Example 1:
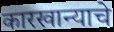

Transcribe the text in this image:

कारखान्याचे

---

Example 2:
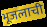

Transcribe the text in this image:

भूजलाची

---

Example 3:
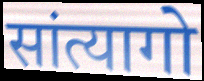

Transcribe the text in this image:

सांत्यागो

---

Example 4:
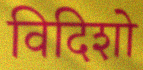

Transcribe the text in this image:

विदिशो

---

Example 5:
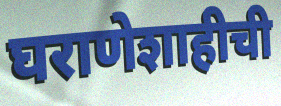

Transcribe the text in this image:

घराणेशाहीची